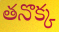
తనొక్క